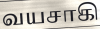
வயசாகி